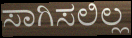
ಸಾಗಿಸಲಿಲ್ಲ